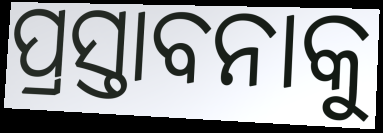
ପ୍ରସ୍ତାବନାକୁ